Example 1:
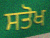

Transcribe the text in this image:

ਸਤੋਖ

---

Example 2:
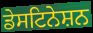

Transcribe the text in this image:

ਡੇਸਟਿਨੇਸ਼ਨ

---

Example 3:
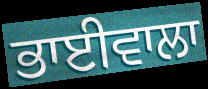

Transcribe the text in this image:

ਭਾਈਵਾਲਾ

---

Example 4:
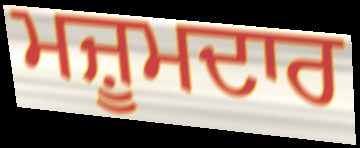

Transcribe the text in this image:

ਮਜ਼ੂਮਦਾਰ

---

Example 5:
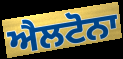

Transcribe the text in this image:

ਐਲਟੋਨਾ